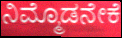
ನಿಮ್ಮೊಡನೇಕೆ